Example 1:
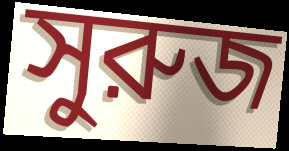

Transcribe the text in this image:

সুরুজ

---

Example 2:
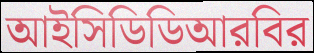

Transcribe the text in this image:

আইসিডিডিআরবির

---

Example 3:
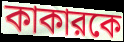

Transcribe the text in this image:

কাকারকে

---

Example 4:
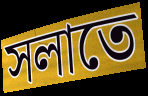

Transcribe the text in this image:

সলাতে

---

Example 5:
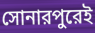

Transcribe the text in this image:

সোনারপুরেই